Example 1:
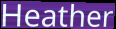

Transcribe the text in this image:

Heather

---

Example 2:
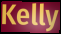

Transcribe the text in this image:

Kelly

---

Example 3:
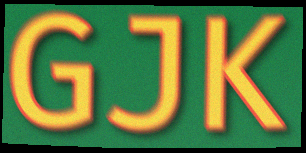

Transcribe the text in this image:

GJK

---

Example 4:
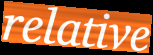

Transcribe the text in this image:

relative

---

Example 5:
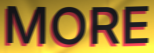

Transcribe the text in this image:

MORE